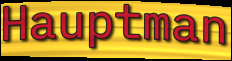
Hauptman